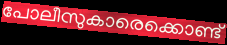
പോലീസുകാരെക്കൊണ്ട്